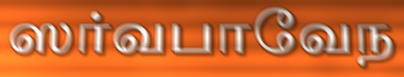
ஸர்வபாவேந